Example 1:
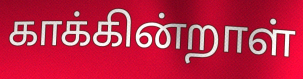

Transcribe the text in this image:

காக்கின்றாள்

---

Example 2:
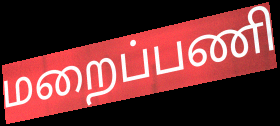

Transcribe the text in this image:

மறைப்பணி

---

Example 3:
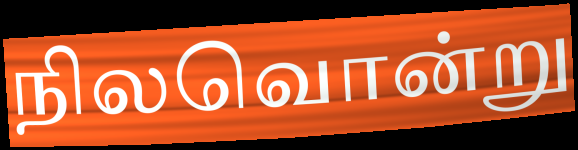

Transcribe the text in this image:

நிலவொன்று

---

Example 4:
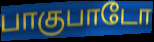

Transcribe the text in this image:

பாகுபாடோ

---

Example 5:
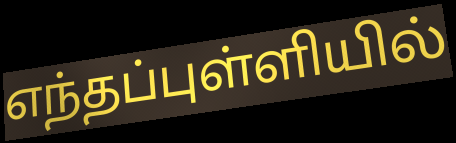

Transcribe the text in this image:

எந்தப்புள்ளியில்